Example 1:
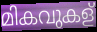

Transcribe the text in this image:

മികവുകള്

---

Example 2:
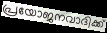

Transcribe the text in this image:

പ്രയോജനവാദിക്ക്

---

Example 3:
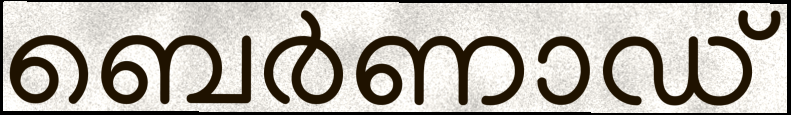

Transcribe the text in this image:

ബെർണാഡ്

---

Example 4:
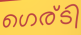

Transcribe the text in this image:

ഗെര്ടി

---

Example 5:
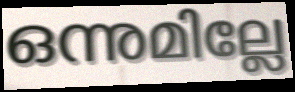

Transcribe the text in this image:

ഒന്നുമില്ലേ